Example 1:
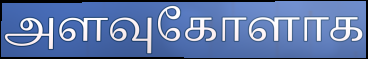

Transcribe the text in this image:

அளவுகோளாக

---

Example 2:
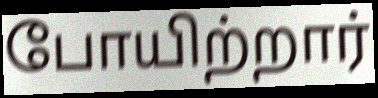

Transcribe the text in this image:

போயிற்றார்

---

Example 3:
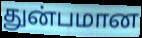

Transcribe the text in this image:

துன்பமான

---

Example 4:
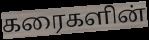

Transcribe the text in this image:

கரைகளின்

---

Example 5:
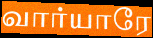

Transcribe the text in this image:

வார்யாரே